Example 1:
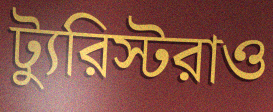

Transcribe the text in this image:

ট্যুরিস্টরাও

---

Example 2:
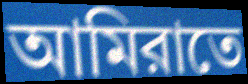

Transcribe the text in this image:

আমিরাতে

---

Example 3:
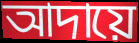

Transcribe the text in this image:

আদায়ে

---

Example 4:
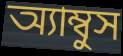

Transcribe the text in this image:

অ্যাম্বুস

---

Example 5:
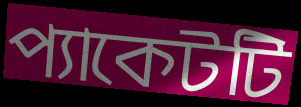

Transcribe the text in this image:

প্যাকেটটি